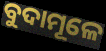
ବୁଦାମୂଳେ